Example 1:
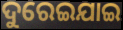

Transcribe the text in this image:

ଦୁରେଇଯାଇ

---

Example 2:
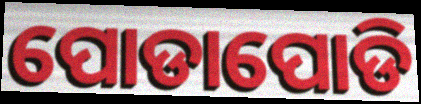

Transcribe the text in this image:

ପୋଡାପୋଡି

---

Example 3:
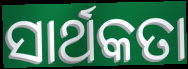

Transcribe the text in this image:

ସାର୍ଥକତା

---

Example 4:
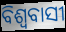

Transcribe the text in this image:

ବିଶ୍ୱବାସୀ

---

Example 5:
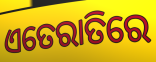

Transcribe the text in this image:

ଏତେରାତିରେ